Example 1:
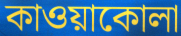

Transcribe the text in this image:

কাওয়াকোলা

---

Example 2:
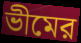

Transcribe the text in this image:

ভীমের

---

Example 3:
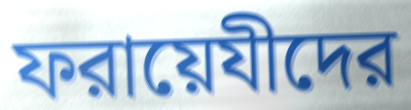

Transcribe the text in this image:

ফরায়েযীদের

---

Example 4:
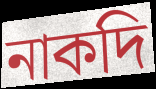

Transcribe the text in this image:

নাকদি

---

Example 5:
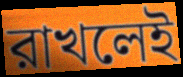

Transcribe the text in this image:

রাখলেই